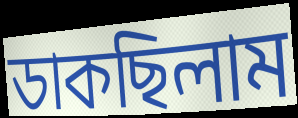
ডাকছিলাম